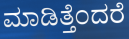
ಮಾಡಿತ್ತೆಂದರೆ